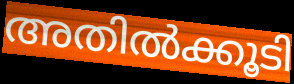
അതിൽക്കൂടി